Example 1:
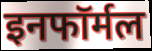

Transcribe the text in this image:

इनफॉर्मल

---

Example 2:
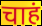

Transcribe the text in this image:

चाहं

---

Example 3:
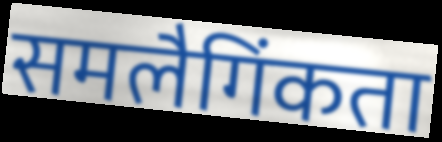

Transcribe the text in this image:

समलैगिंकता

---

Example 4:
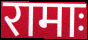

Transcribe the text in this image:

रामाः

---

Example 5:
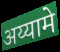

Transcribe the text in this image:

अय्यामे